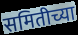
समितीच्या